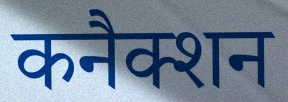
कनैक्शन